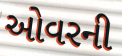
ઓવરની